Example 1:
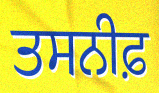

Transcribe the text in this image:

ਤਸਨੀਫ਼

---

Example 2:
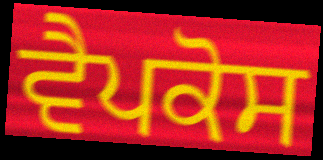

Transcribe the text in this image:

ਵੈਪਕੋਸ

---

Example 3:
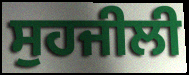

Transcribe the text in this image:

ਸੁਹਜੀਲੀ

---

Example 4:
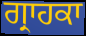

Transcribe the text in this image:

ਗ੍ਰਾਹਕਾ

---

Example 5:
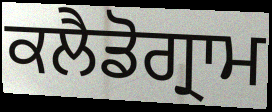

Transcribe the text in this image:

ਕਲੈਡੋਗ੍ਰਾਮ